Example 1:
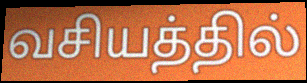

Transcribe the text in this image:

வசியத்தில்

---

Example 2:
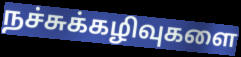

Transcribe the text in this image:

நச்சுக்கழிவுகளை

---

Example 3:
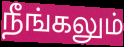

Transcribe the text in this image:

நீங்கலும்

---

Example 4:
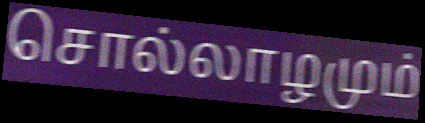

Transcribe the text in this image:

சொல்லாழமும்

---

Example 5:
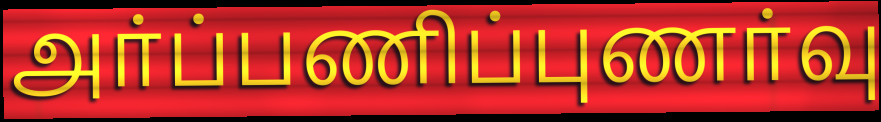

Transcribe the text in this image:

அர்ப்பணிப்புணர்வு